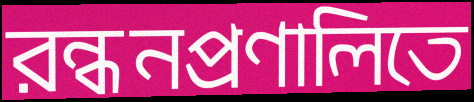
রন্ধনপ্রণালিতে